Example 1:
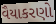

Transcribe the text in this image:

વૈયાકરણો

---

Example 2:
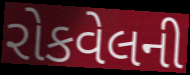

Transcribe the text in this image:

રોકવેલની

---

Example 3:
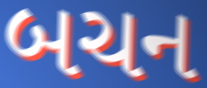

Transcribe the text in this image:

બચન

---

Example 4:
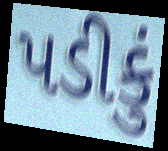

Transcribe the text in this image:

પડીકું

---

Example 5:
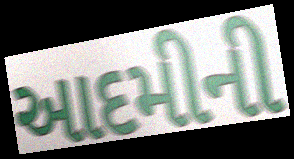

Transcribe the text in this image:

આદમીની